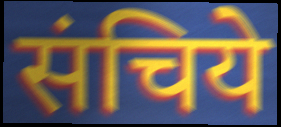
संचिये